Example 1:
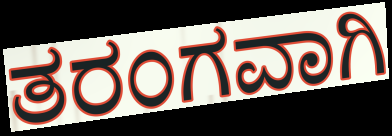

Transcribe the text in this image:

ತರಂಗವಾಗಿ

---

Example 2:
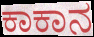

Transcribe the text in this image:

ಕಾಕಾನ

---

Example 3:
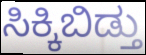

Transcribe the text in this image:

ಸಿಕ್ಕಿಬಿಡ್ತು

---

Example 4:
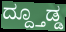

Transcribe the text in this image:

ದ್ದ್ತೂಡ್ಡ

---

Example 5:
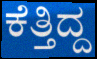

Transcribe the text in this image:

ಕೆತ್ತಿದ್ದ